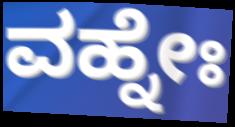
ವಹ್ನೇಃ